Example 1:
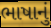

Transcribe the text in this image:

ભાષાનું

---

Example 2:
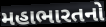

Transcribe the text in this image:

મહાભારતનો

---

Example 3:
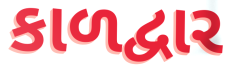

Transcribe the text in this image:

કાળદ્વાર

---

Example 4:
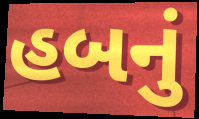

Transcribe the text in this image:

હબનું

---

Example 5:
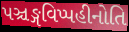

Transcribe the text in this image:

પઞ્ચઙ્ગવિપ્પહીનોતિ